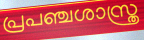
പ്രപഞ്ചശാസ്ത്ര